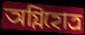
অগ্নিহোত্র